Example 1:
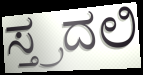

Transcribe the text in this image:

ಸ್ತ್ರದಲಿ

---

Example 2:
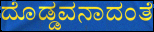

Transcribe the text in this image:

ದೊಡ್ಡವನಾದಂತೆ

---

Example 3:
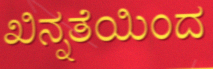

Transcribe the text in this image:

ಖಿನ್ನತೆಯಿಂದ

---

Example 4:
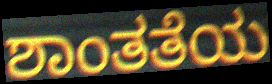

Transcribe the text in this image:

ಶಾಂತತೆಯ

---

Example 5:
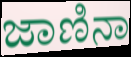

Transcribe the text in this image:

ಜಾಣಿನಾ